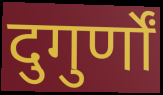
दुगुर्णों